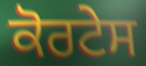
ਕੋਰਟੇਸ